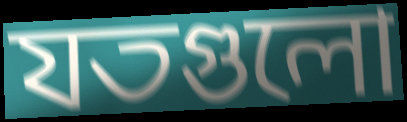
যতগুলো